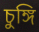
চুঙ্গি